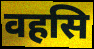
वहसि